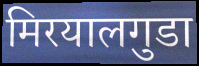
मिरयालगुडा